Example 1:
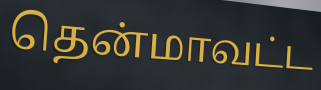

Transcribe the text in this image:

தென்மாவட்ட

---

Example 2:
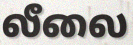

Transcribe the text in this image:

லீலை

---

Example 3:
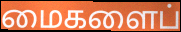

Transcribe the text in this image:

மைகளைப்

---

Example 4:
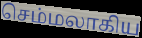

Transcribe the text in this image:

செம்மலாகிய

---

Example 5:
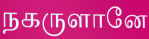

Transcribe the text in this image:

நகருளானே